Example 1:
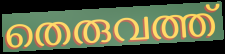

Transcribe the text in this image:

തെരുവത്ത്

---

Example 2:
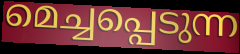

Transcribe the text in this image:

മെച്ചപ്പെടുന്ന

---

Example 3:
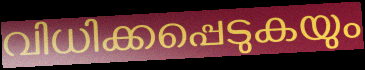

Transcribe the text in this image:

വിധിക്കപ്പെടുകയും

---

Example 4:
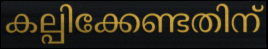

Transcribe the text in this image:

കല്പിക്കേണ്ടതിന്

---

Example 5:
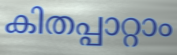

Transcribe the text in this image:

കിതപ്പാറ്റാം